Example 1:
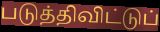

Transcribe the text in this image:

படுத்திவிட்டுப்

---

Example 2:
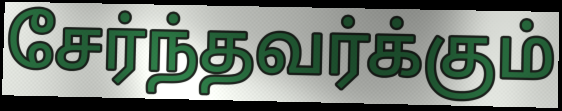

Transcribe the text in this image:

சேர்ந்தவர்க்கும்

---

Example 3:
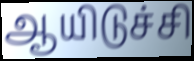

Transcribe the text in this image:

ஆயிடுச்சி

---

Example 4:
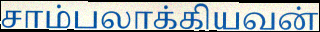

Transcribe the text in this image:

சாம்பலாக்கியவன்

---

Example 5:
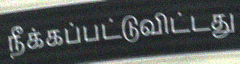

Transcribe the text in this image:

நீக்கப்பட்டுவிட்டது